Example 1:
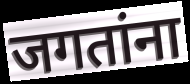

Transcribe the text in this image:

जगतांना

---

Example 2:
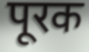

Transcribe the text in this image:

पूरक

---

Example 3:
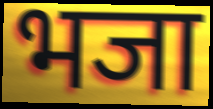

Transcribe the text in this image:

भजा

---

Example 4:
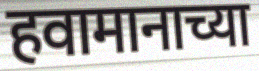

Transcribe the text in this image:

हवामानाच्या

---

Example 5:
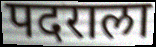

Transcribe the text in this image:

पदराला